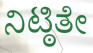
ನಿಟ್ಠಿತೇ